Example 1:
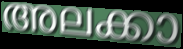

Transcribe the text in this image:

അലക്കാ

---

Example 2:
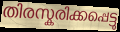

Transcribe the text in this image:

തിരസ്കരിക്കപ്പെട്ടു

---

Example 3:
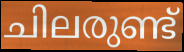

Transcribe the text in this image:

ചിലരുണ്ട്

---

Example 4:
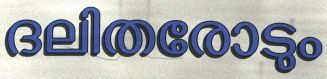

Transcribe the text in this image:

ദലിതരോടും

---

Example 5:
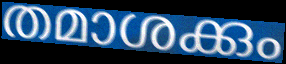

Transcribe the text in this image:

തമാശക്കും